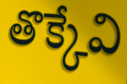
తొక్కేవి